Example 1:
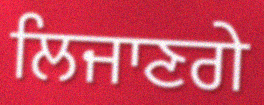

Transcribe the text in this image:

ਲਿਜਾਣਗੇ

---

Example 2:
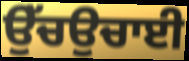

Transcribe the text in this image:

ਉੱਚਉਚਾਈ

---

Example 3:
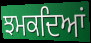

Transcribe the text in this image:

ਝਮਕਦਿਆਂ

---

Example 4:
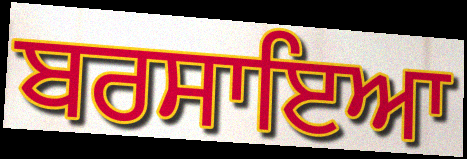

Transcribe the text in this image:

ਬਰਸਾਇਆ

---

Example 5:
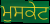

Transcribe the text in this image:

ਮੁਸਕੇਟ